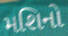
મશિનો